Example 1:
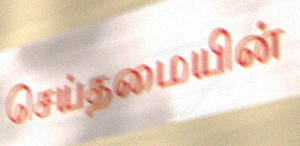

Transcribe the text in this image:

செய்தமையின்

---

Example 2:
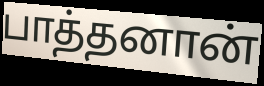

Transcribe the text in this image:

பாத்தனான்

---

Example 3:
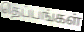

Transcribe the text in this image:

தெப்பங்கள்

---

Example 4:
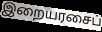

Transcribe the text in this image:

இறையரசைப்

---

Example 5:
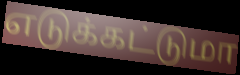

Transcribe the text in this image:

எடுக்கட்டுமா